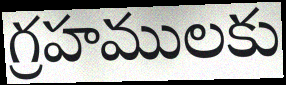
గ్రహములకు